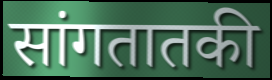
सांगतातकी